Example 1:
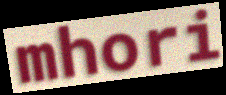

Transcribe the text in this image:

mhori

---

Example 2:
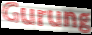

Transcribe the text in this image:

Gurung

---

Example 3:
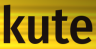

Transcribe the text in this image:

kute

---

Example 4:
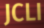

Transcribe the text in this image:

JCLI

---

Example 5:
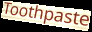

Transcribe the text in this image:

Toothpaste